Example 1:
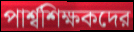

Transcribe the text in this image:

পার্শ্বশিক্ষকদের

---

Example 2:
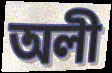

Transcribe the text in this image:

অলী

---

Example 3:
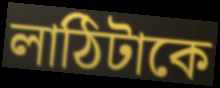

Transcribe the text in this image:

লাঠিটাকে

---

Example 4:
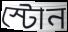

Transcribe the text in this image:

স্টোন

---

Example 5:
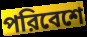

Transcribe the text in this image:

পরিবেশে